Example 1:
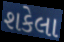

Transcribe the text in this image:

શકેલા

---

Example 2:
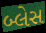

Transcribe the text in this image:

બ્લેસ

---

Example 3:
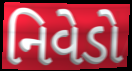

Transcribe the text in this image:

નિવેડો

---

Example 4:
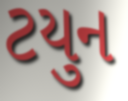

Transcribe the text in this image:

ટયુન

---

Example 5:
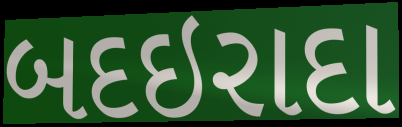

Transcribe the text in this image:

બદઇરાદા